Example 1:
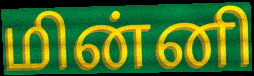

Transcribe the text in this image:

மின்னி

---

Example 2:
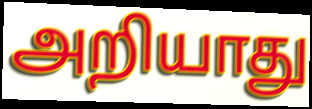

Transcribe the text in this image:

அறியாது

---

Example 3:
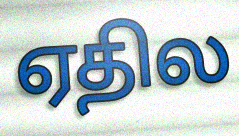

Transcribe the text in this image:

ஏதில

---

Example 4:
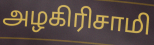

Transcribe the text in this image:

அழகிரிசாமி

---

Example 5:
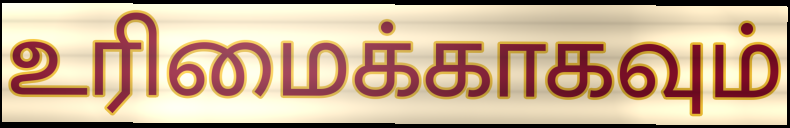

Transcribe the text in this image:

உரிமைக்காகவும்